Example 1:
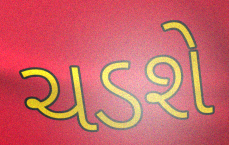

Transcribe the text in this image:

ચડશે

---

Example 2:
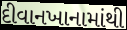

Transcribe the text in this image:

દીવાનખાનામાંથી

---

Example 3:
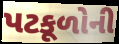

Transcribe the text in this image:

પટકૂળોની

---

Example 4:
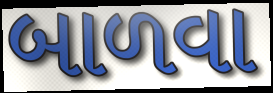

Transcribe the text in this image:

બાળવા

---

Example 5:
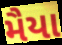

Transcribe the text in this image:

મૈયા